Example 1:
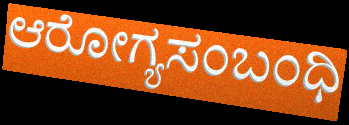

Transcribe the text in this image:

ಆರೋಗ್ಯಸಂಬಂಧಿ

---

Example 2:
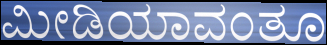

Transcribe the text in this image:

ಮೀಡಿಯಾವಂತೂ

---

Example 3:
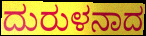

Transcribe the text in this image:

ದುರುಳನಾದ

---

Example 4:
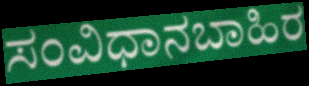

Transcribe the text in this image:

ಸಂವಿಧಾನಬಾಹಿರ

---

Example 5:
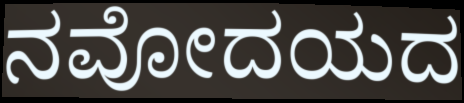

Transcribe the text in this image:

ನವೋದಯದ